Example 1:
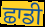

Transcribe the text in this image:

ਛਾਡੀ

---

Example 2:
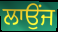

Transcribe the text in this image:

ਲਾਉਂਜ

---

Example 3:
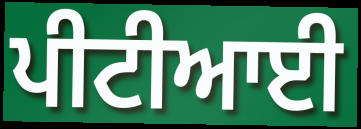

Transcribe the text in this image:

ਪੀਟੀਆਈ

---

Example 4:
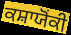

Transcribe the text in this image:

ਕਸ਼ਾਯੋਂਕੀ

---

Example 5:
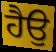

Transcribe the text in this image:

ਹੈਉ